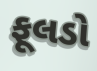
ફૂલડો